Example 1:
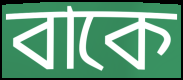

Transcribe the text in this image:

বাকে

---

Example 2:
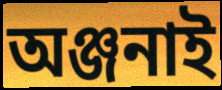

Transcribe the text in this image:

অঞ্জনাই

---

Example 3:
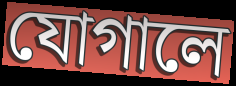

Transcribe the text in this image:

যোগালে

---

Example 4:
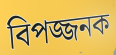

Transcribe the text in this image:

বিপজ্জনক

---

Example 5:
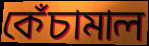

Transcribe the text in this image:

কেঁচামাল